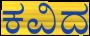
ಕವಿದ